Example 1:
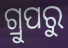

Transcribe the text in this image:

ଗ୍ରୁପରୁ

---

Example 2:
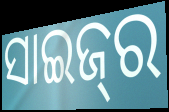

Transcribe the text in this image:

ସାଇଜ୍‌ର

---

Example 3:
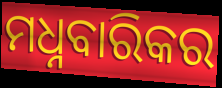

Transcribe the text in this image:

ମଧ୍ନବାରିକର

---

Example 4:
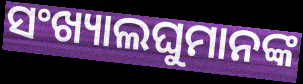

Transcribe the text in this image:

ସଂଖ୍ୟାଲଘୁମାନଙ୍କ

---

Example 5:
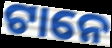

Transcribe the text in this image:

ଟାନେ